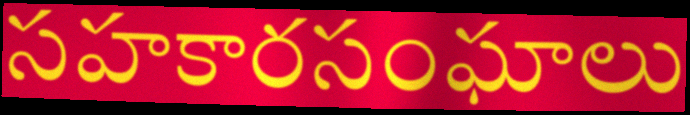
సహకారసంఘాలు